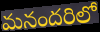
మనందరిలో